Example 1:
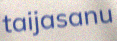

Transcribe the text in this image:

taijasanu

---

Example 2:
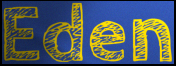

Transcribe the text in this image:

Eden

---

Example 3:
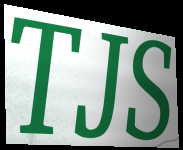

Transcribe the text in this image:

TJS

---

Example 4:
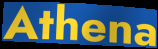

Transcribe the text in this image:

Athena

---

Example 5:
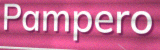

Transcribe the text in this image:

Pampero